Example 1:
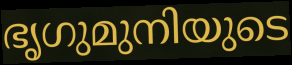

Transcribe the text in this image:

ഭൃഗുമുനിയുടെ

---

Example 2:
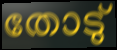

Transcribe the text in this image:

തോടു്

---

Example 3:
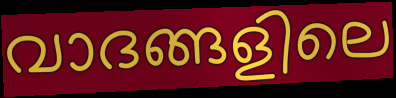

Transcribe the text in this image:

വാദങ്ങളിലെ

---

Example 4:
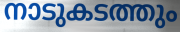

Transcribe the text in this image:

നാടുകടത്തും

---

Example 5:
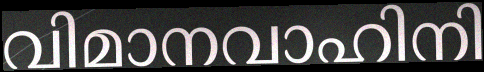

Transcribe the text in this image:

വിമാനവാഹിനി